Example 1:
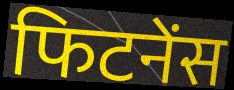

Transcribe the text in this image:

फिटनेंस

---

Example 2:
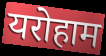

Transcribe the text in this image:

यरोहाम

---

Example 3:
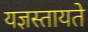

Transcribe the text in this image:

यज्ञस्तायते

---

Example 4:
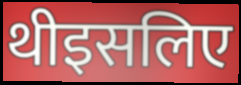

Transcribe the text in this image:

थीइसलिए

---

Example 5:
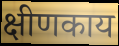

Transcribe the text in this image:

क्षीणकाय